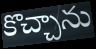
కొచ్చాను